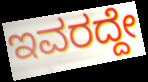
ಇವರದ್ದೇ